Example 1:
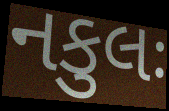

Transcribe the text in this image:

નકુલઃ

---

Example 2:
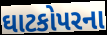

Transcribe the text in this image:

ઘાટકોપરના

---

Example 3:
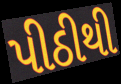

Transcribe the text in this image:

પીઠીથી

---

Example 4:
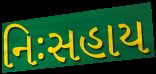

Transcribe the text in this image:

નિઃસહાય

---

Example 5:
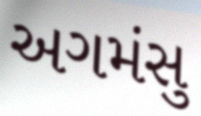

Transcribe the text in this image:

અગમંસુ